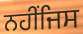
ਨਹੀਂਜਿਸ